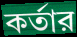
কর্তার